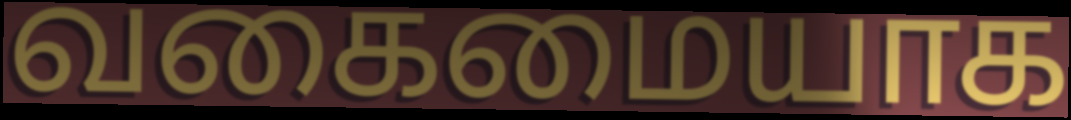
வகைமையாக